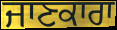
ਜਾਣਕਾਰਾ